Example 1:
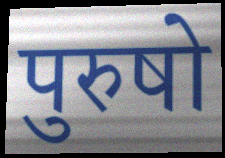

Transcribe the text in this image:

पुरुषो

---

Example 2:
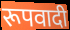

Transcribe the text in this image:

रूपवादी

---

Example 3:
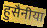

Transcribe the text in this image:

हुसैनीया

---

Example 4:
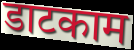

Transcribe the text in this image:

डाटकाम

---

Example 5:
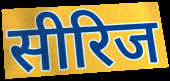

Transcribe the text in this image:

सीरिज